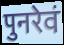
पुनरेवं